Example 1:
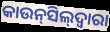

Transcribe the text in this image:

କାଉନ୍‌ସିଲ୍‌ଦ୍ବାରା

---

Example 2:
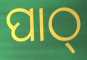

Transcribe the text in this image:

ପାଠ୍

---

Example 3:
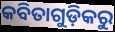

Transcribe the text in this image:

କବିତାଗୁଡ଼ିକରୁ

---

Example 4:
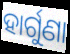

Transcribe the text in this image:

ହାର୍ଗୁଣା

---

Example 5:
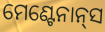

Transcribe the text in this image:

ମେଣ୍ଟେନାନ୍‌ସ